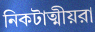
নিকটাত্মীয়রা